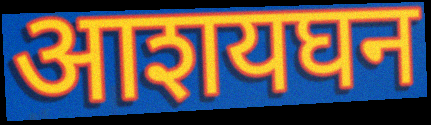
आशयघन